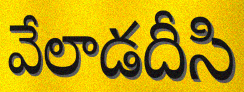
వేలాడదీసి